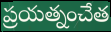
ప్రయత్నంచేత